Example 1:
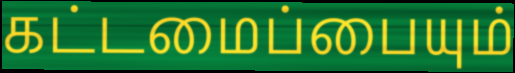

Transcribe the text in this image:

கட்டமைப்பையும்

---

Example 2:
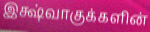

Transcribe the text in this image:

இக்ஷ்வாகுக்களின்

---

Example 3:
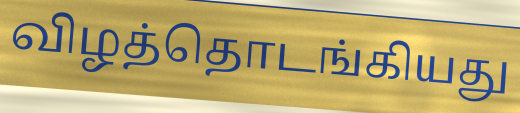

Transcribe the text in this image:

விழத்தொடங்கியது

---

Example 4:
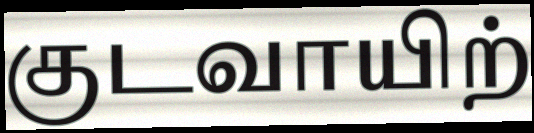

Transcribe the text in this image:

குடவாயிற்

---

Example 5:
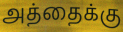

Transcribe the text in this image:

அத்தைக்கு